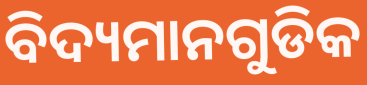
ବିଦ୍ୟମାନଗୁଡିକ